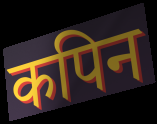
कपिन